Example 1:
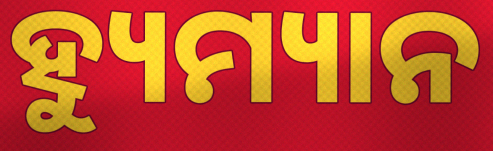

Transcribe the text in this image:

ହ୍ୟୁମ୍ୟାନ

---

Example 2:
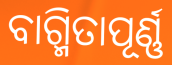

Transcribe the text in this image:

ବାଗ୍ମିତାପୂର୍ଣ୍ଣ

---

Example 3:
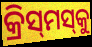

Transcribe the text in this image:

କ୍ରିସ୍‌ମସ୍‌କୁ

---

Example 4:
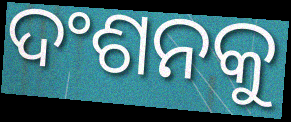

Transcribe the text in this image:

ଦଂଶନକୁ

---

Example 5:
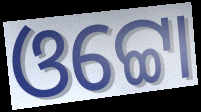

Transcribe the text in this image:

ଓଟ୍ଟୋ